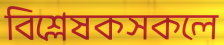
বিশ্লেষকসকলে